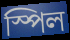
স্পিল